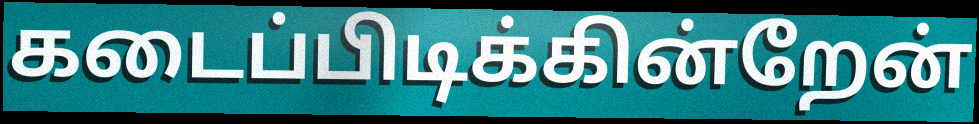
கடைப்பிடிக்கின்றேன்